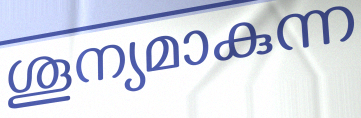
ശൂന്യമാകുന്ന